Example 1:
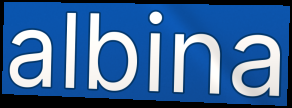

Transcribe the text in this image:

albina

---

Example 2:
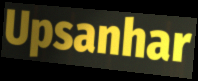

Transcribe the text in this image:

Upsanhar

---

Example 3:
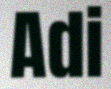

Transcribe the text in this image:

Adi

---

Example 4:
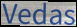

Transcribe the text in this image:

Vedas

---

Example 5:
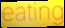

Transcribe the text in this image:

eating